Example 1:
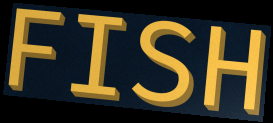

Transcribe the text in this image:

FISH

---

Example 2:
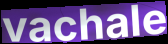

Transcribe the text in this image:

vachale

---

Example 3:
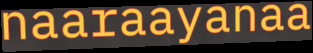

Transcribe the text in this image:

naaraayanaa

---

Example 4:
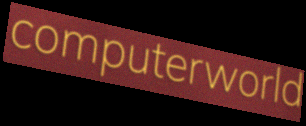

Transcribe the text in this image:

computerworld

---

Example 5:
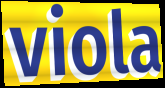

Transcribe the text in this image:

viola